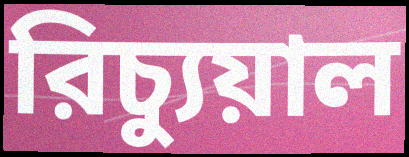
রিচ্যুয়াল